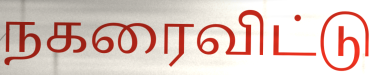
நகரைவிட்டு